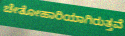
ಚೇತೋಹಾರಿಯಾಗಿರುತ್ತವೆ